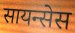
सायन्सेस